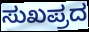
ಸುಖಪ್ರದ